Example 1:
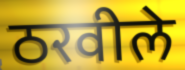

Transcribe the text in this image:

ठरवीले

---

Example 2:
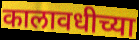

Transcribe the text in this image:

कालावधीच्या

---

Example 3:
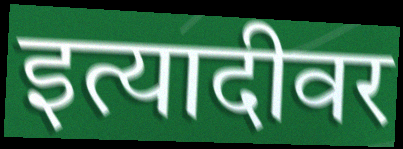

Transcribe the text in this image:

इत्यादीवर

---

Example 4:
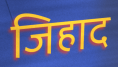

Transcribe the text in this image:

जिहाद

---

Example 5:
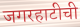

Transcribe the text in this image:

जगरहाटीची